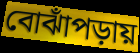
বোঝাঁপড়ায়